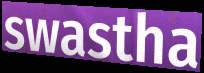
swastha